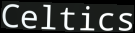
Celtics